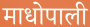
माधोपाली